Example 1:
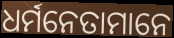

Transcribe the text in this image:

ଧର୍ମନେତାମାନେ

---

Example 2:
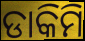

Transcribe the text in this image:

ଡାକିମି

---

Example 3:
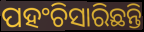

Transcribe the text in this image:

ପହଂଚିସାରିଛନ୍ତି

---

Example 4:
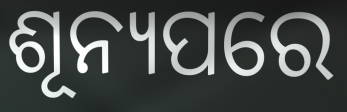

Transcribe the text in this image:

ଶୂନ୍ୟପରେ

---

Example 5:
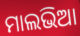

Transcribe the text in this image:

ମାଲଭିଆ